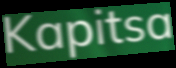
Kapitsa